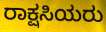
ರಾಕ್ಷಸಿಯರು